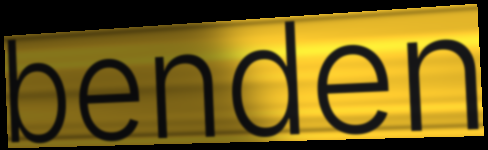
benden